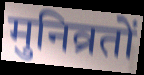
मुनिव्रतों